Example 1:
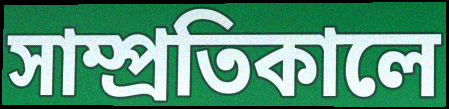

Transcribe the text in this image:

সাম্প্রতিকালে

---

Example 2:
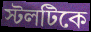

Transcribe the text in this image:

স্টলটিকে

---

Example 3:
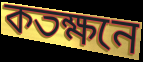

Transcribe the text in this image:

কতক্ষনে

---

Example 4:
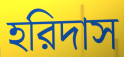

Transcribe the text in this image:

হরিদাস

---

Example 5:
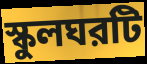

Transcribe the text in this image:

স্কুলঘরটি